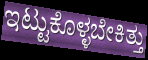
ಇಟ್ಟುಕೊಳ್ಳಬೇಕಿತ್ತು